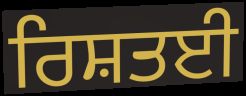
ਰਿਸ਼ਤਈ